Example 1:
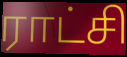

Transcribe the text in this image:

ராட்சி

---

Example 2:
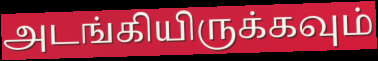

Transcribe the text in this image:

அடங்கியிருக்கவும்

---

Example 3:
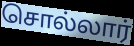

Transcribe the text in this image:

சொல்லார்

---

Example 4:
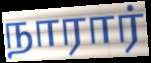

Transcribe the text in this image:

நாரார்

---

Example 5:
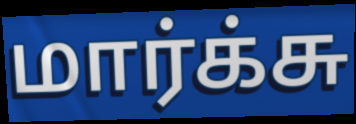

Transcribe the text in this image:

மார்க்சு